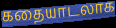
கதையாடலாக